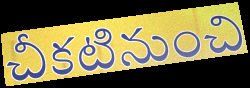
చీకటినుంచి